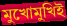
মুখোমুখিই